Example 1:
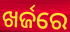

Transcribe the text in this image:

ଖର୍ଜରେ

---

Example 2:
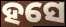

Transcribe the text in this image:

ହସେ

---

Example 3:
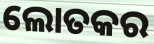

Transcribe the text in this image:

ଲୋତକର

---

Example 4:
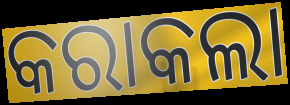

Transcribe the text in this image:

କରାକଲା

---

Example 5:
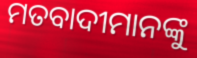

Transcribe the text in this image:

ମତବାଦୀମାନଙ୍କୁ